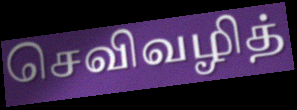
செவிவழித்